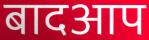
बादआप